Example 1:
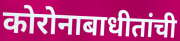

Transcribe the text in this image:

कोरोनाबाधीतांची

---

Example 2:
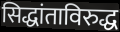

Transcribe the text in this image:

सिद्धांताविरुद्ध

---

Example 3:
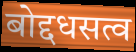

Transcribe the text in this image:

बोद्दधसत्व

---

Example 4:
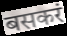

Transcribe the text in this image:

बसकरं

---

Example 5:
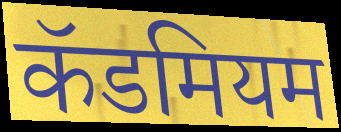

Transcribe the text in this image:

कॅडमियम